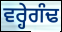
ਵਰ੍ਹੇਗੰਢ